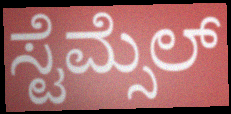
ಸ್ಟೆಮ್ಸೆಲ್